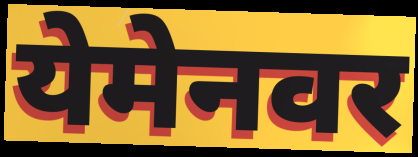
येमेनवर